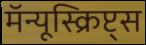
मॅन्यूस्क्रिप्ट्स